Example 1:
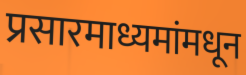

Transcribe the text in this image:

प्रसारमाध्यमांमधून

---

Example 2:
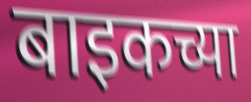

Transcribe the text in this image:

बाइकच्या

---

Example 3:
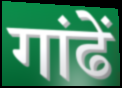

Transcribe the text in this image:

गांढें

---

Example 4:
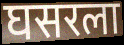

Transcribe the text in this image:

घसरला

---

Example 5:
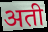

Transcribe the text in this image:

अती